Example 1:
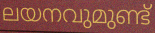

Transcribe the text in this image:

ലയനവുമുണ്ട്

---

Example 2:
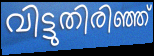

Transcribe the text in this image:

വിട്ടുതിരിഞ്ഞ്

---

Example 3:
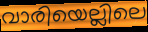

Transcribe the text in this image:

വാരിയെല്ലിലെ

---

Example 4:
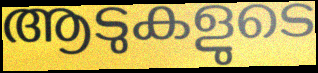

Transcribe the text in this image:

ആടുകളുടെ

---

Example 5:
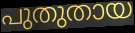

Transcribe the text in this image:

പുതുതായ